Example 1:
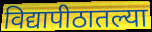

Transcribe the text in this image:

विद्यापीठातल्या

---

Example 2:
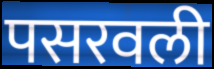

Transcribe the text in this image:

पसरवली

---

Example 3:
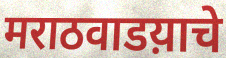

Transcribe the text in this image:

मराठवाडय़ाचे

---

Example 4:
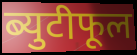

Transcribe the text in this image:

ब्युटीफूल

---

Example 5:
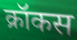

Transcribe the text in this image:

क्रॉकस